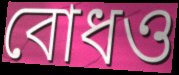
বোধও